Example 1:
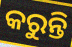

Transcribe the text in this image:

କରୁନ୍ତି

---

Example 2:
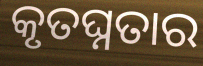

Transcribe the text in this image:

କୃତଘ୍ନତାର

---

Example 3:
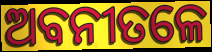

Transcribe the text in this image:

ଅବନୀତଳେ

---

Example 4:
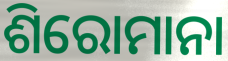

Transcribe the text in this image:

ଶିରୋମାନା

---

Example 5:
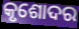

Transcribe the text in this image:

କୃଶୋଦର